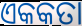
ଏକକତା